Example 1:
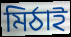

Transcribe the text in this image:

মিঠাই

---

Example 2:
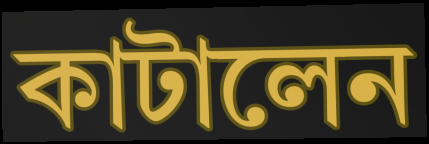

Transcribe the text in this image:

কাটালেন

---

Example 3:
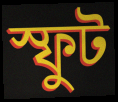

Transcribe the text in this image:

স্ফুট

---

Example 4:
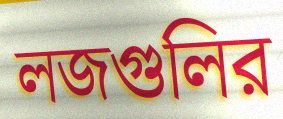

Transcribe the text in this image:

লজগুলির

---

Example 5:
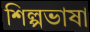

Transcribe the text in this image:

শিল্পভাষা